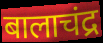
बालाचंद्र